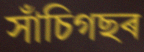
সাঁচিগছৰ